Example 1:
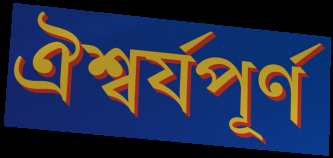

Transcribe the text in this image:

ঐশ্বর্যপূর্ণ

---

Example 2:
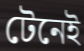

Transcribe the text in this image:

টেনেই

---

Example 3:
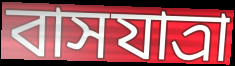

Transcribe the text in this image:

বাসযাত্রা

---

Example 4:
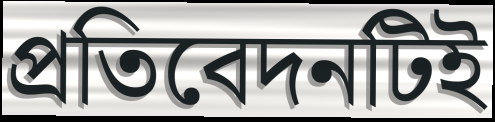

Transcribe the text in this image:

প্রতিবেদনটিই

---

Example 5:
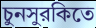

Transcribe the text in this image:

চুনসুরকিতে